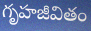
గృహజీవితం